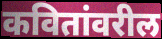
कवितांवरील